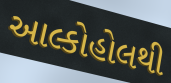
આલ્કોહોલથી